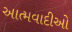
આત્મવાદીઓ